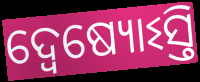
ଦ୍ୱେଷ୍ୟୋଽସ୍ତି